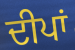
ਦੀਪਾਂ